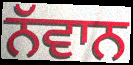
ਨੱਵਾਨ